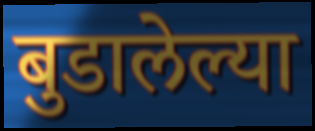
बुडालेल्या